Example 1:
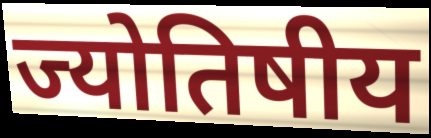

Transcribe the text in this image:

ज्योतिषीय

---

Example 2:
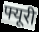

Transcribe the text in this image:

फ्यूरी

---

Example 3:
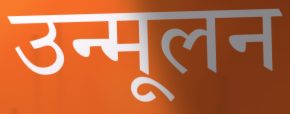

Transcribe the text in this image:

उन्‍मूलन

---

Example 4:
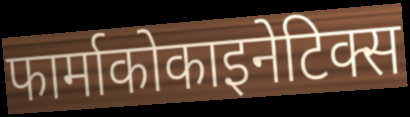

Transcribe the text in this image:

फार्माकोकाइनेटिक्स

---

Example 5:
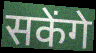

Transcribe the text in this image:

सकेंगे